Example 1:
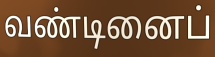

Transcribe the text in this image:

வண்டினைப்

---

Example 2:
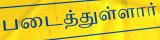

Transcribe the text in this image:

படைத்துள்ளார்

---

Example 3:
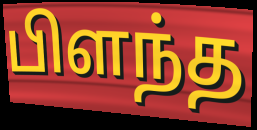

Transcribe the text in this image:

பிளந்த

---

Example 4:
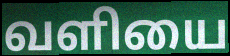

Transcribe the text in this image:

வளியை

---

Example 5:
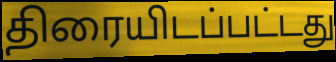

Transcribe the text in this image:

திரையிடப்பட்டது